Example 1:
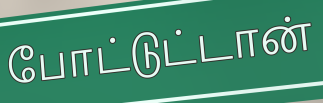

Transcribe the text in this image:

போட்டுட்டான்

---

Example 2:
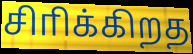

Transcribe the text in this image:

சிரிக்கிறத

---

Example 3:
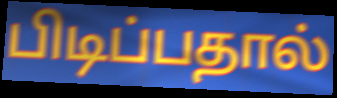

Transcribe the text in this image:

பிடிப்பதால்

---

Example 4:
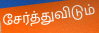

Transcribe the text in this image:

சேர்த்துவிடும்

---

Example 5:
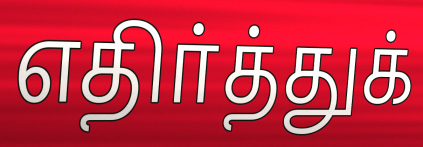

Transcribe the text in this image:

எதிர்த்துக்